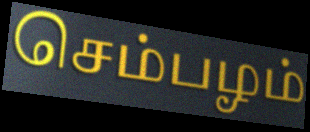
செம்பழம்